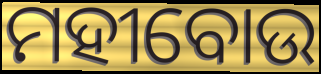
ମହୀବୋଉ